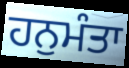
ਹਨੁਮੰਤਾ